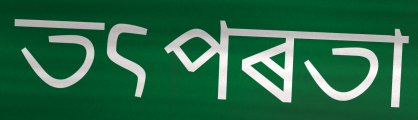
তৎপৰতা